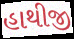
હાથીજી